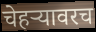
चेहर्‍यावरच